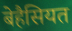
बेहैसियत